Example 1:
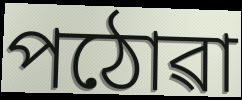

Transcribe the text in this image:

পঠোৱা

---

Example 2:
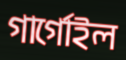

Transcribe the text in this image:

গাৰ্গোইল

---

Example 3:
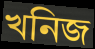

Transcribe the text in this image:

খনিজ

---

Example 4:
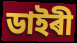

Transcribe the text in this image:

ডাইৰী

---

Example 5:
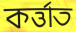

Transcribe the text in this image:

কৰ্ত্তাত